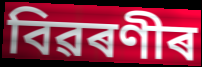
বিৱৰণীৰ